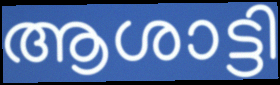
ആശാട്ടി